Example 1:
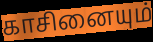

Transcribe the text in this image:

காசினையும்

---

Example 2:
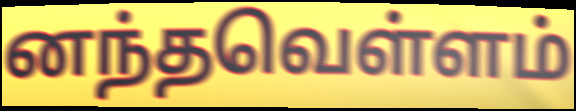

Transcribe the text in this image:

னந்தவெள்ளம்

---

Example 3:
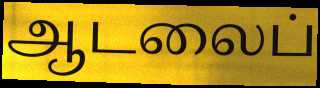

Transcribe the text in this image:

ஆடலைப்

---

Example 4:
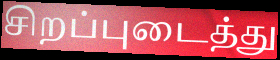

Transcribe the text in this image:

சிறப்புடைத்து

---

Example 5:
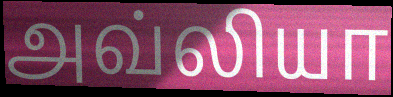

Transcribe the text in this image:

அவ்லியா